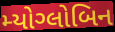
મ્યોગ્લોબિન